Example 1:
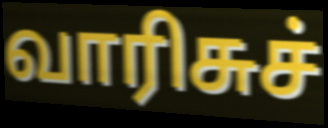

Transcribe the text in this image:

வாரிசுச்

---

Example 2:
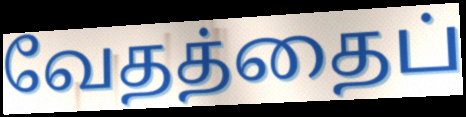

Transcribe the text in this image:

வேதத்தைப்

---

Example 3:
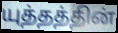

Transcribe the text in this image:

யுத்தத்தின்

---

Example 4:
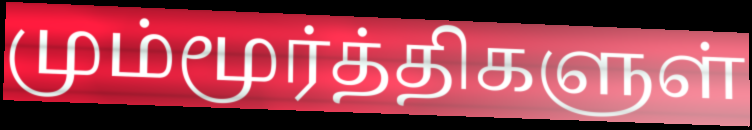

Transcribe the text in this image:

மும்மூர்த்திகளுள்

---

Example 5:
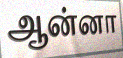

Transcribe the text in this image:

ஆன்னா